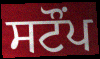
ਸਟੌਂਪ